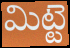
మిట్టె